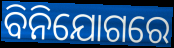
ବିନିଯୋଗରେ